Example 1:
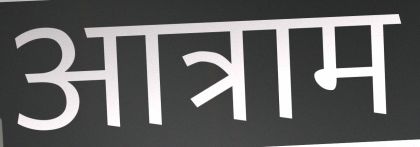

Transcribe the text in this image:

आत्राम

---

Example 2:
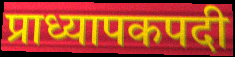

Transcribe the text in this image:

प्राध्यापकपदी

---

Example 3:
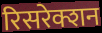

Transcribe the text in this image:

रिसरेक्शन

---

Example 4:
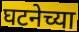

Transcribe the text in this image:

घटनेच्या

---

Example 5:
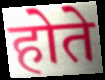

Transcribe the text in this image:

होते